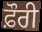
ਫ਼ੌਰੀ